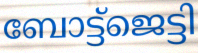
ബോട്ട്ജെട്ടി